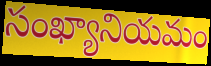
సంఖ్యానియమం